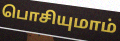
பொசியுமாம்